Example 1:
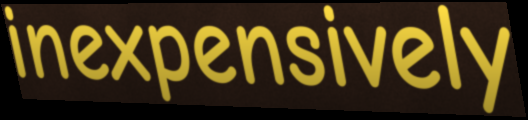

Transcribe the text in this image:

inexpensively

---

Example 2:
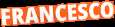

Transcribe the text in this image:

FRANCESCO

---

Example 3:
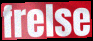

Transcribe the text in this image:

frelse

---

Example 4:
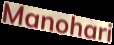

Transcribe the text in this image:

Manohari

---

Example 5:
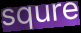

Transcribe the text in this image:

squre